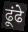
ढ़ूंढे